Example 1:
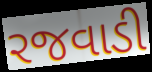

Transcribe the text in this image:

રજવાડી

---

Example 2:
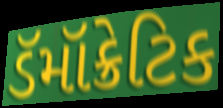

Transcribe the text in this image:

ડૅમૉક્રેટિક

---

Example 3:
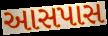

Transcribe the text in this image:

આસપાસ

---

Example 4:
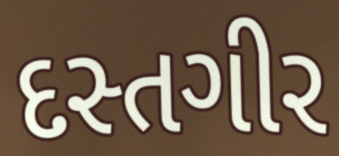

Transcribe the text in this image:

દસ્તગીર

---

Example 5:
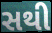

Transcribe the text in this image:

સથી